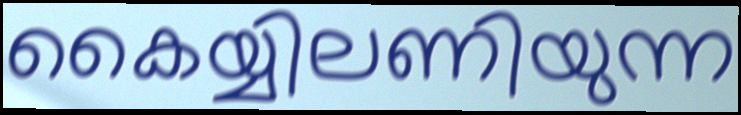
കൈയ്യിലണിയുന്ന